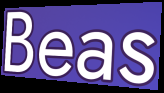
Beas